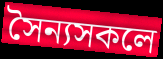
সৈন্যসকলে